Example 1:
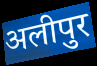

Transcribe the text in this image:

अलीपुर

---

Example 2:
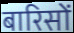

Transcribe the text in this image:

बारिसों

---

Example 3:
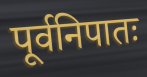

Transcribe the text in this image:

पूर्वनिपातः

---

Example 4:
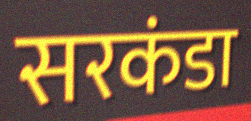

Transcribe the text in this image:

सरकंडा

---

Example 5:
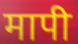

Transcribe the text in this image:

मापी